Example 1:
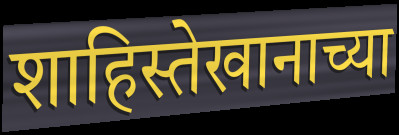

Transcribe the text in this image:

शाहिस्तेखानाच्या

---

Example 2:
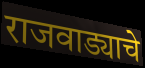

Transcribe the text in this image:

राजवाड्याचे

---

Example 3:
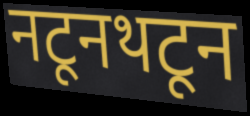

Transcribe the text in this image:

नटूनथटून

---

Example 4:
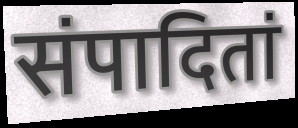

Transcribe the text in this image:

संपादितां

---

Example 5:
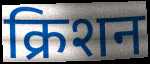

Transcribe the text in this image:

क्रिशन